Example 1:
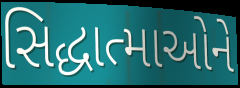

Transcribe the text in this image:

સિદ્ધાત્માઓને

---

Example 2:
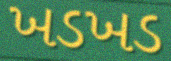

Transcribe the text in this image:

ખડખડ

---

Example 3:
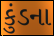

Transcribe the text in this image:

કુંડના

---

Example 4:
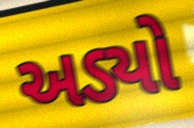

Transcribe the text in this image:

અડ્યો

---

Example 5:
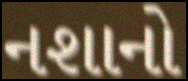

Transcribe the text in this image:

નશાનો